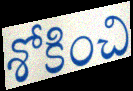
శోకించి